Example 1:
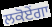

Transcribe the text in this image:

ਲਕੋਏਂਗਾ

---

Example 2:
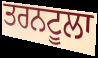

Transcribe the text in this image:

ਤਰਨਟੂਲਾ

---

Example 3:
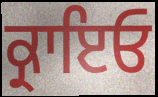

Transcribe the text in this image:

ਕ੍ਰਾਇਓ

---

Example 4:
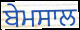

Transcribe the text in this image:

ਬੇਮਸਾਲ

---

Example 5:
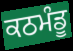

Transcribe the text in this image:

ਕਠਮੰਡੂ